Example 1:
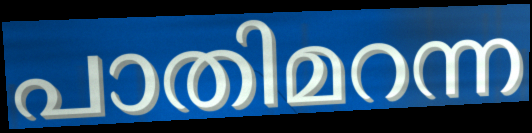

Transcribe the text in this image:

പാതിമറന്ന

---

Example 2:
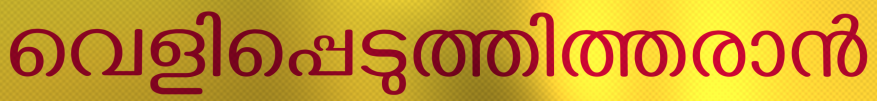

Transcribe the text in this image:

വെളിപ്പെടുത്തിത്തരാൻ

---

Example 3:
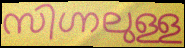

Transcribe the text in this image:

സിഗ്നലുള്ള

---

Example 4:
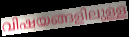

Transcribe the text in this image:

വിഷയങ്ങളിലുള്ള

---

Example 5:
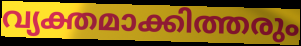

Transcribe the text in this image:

വ്യക്തമാക്കിത്തരും